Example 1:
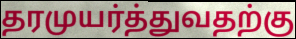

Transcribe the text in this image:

தரமுயர்த்துவதற்கு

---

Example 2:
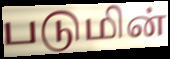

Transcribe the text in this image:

படுமின்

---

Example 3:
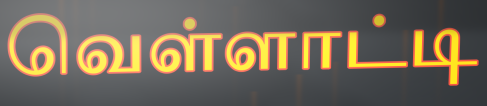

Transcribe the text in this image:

வெள்ளாட்டி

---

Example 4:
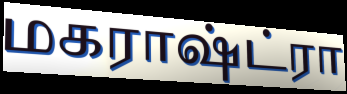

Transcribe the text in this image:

மகராஷ்ட்ரா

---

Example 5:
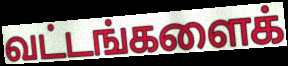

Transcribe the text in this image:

வட்டங்களைக்